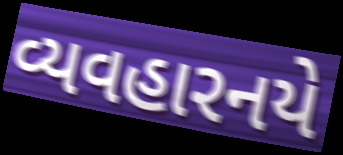
વ્યવહારનયે